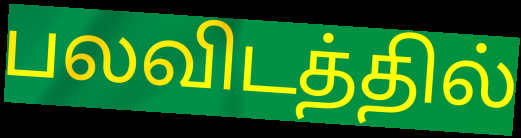
பலவிடத்தில்